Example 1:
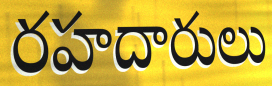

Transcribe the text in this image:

రహదారులు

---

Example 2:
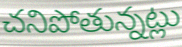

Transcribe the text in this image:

చనిపోతున్నట్లు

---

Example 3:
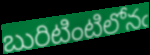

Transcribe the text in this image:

బురిటింటిలోనఁ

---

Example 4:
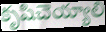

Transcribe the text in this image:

కృషిచెయ్యాలి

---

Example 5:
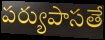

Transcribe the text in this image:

పర్యుపాసతే